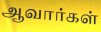
ஆவார்கள்